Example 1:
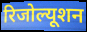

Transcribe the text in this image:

रिजोल्यूशन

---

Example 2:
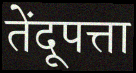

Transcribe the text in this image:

तेंदूपत्ता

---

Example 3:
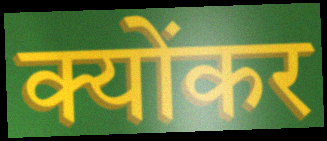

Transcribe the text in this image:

क्‍योंकर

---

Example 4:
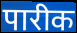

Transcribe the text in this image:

पारीक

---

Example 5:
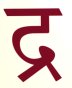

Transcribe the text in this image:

द्र